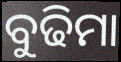
ବୁଢିମା